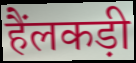
हैंलकड़ी